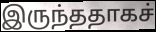
இருந்ததாகச்